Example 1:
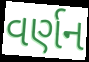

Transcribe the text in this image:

વર્ણન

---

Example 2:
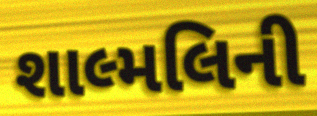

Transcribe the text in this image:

શાલ્મલિની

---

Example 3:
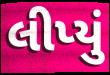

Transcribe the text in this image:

લીપ્યું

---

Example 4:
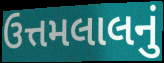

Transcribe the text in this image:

ઉત્તમલાલનું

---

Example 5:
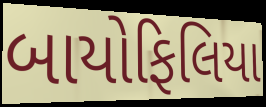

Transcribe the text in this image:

બાયોફિલિયા